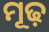
ମୂଢ଼